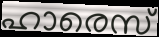
ഹാരെസ്